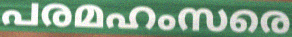
പരമഹംസരെ